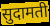
सुदामती